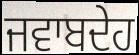
ਜਵਾਬਦੇਹ